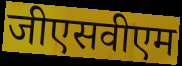
जीएसवीएम